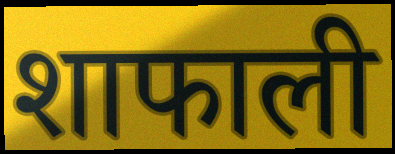
शाफाली